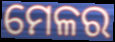
ମେଳର